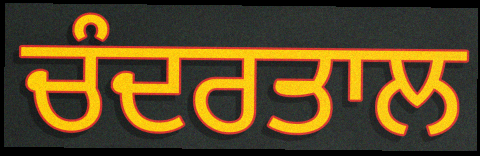
ਚੰਦਰਤਾਲ